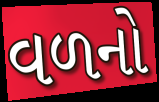
વળનો